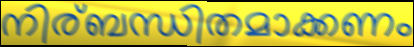
നിര്ബന്ധിതമാക്കണം